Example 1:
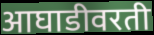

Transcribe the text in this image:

आघाडीवरती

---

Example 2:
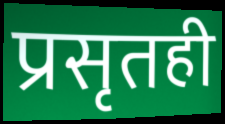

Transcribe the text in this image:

प्रसृतही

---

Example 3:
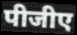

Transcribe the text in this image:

पीजीए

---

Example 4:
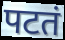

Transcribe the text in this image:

पटतं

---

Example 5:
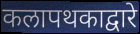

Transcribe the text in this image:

कलापथकाद्वारे